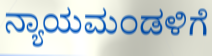
ನ್ಯಾಯಮಂಡಳಿಗೆ